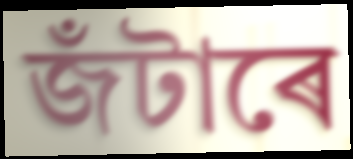
জঁটাৰে